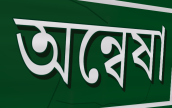
অন্বেষা